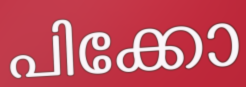
പിക്കോ